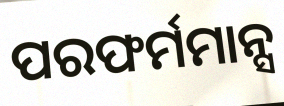
ପରଫର୍ମମାନ୍ସ